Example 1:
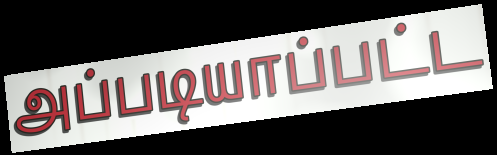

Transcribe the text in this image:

அப்படியாப்பட்ட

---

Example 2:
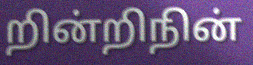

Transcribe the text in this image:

றின்றிநின்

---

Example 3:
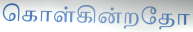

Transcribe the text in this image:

கொள்கின்றதோ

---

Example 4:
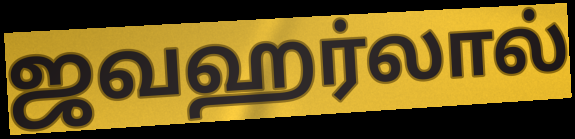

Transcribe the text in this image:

ஜவஹர்லால்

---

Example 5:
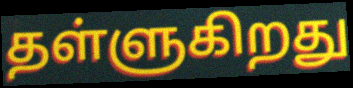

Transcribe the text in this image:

தள்ளுகிறது